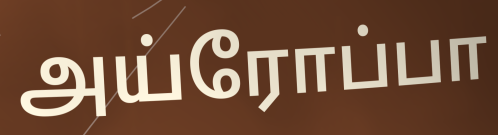
அய்ரோப்பா